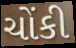
ચોંકી